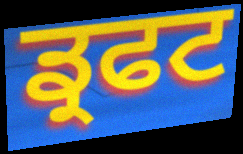
ਡ੍ਰਫਟ